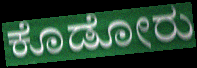
ಕೊಡೋರು